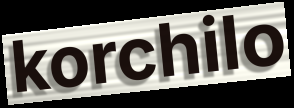
korchilo